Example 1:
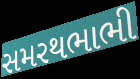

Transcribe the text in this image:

સમરથભાભી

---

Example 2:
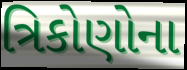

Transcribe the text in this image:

ત્રિકોણોના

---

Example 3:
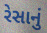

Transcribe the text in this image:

રેસાનું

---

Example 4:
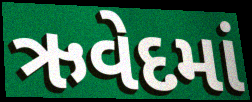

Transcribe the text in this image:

ઋવેદમાં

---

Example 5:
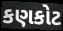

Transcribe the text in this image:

કણકોટ